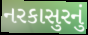
નરકાસુરનું